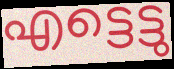
എട്ടെട്ടു